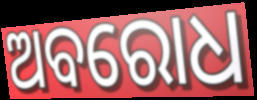
ଅବରୋଧ